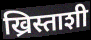
ख्रिस्ताशी